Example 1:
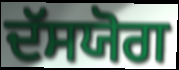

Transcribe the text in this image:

ਦੱਸਯੋਗ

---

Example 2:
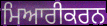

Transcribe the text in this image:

ਮਿਆਰੀਕਰਨ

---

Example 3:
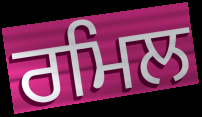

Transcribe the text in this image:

ਰਮਿਲ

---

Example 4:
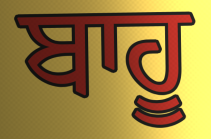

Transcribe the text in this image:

ਬਾਹੂ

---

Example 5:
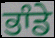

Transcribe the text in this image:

ਭਾੰਡੇ